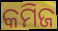
କମିଜ